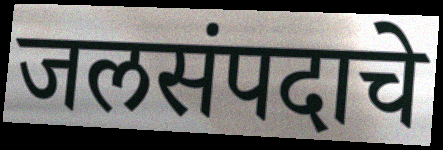
जलसंपदाचे